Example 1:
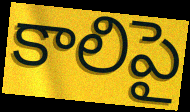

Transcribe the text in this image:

కాలిపై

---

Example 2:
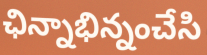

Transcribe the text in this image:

ఛిన్నాభిన్నంచేసి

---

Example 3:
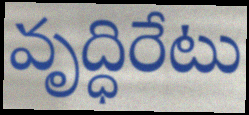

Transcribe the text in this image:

వృద్ధిరేటు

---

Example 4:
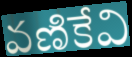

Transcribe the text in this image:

వణికేవి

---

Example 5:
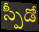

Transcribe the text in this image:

స్పీడో